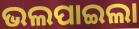
ଭଲପାଇଲା